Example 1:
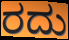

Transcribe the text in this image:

ರದು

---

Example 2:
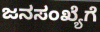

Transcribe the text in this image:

ಜನಸಂಖ್ಯೆಗೆ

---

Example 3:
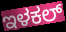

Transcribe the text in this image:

ಇಳಕಲ್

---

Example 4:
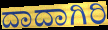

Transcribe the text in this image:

ದಾದಾಗಿರಿ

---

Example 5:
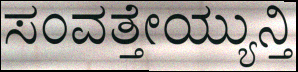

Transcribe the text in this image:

ಸಂವತ್ತೇಯ್ಯುನ್ತಿ